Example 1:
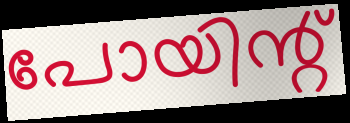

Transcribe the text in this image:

പോയിന്റ്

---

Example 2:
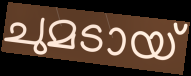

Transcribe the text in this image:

ചുമടായ്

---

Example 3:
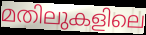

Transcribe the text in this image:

മതിലുകളിലെ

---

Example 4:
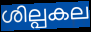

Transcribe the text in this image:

ശില്പകല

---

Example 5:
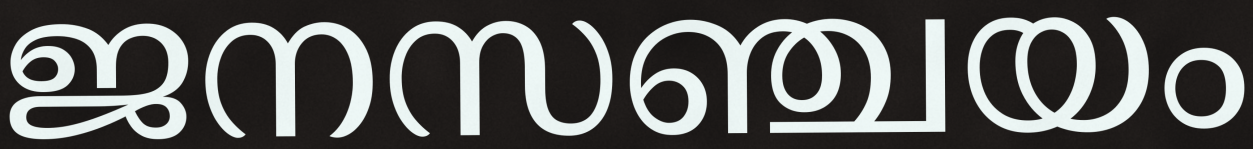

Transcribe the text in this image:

ജനസഞ്ചയം